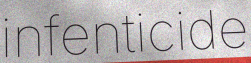
infenticide